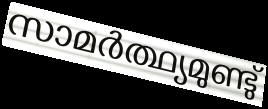
സാമർത്ഥ്യമുണ്ടു്